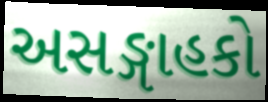
અસઙ્ગાહકો